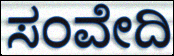
ಸಂವೇದಿ